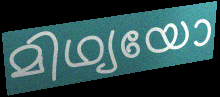
മിഥ്യയോ